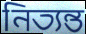
নিত্যন্ত